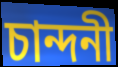
চান্দনী